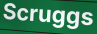
Scruggs